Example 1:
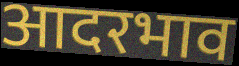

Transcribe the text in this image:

आदरभाव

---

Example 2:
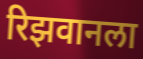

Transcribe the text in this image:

रिझवानला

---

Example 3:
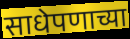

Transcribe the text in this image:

साधेपणाच्या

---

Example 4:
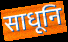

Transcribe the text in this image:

साधूनि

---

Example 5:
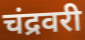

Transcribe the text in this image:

चंद्रवरी